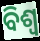
ବିଶ୍ୱ